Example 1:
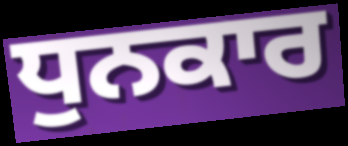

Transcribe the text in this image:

ਧੁਨਕਾਰ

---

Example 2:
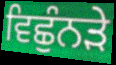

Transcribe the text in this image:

ਵਿਛੁੰਨੜੇ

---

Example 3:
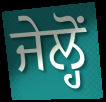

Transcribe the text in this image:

ਜੇਲ੍ਹੋਂ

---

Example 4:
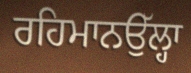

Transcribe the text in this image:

ਰਹਿਮਾਨਉੱਲ੍ਹਾ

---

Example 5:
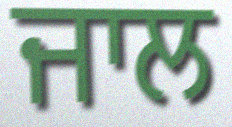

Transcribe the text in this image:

ਜਾਲ